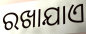
ରଖାଯାଏ